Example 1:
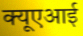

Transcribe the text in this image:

क्यूएआई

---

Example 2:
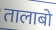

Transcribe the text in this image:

तालाबो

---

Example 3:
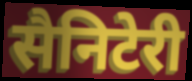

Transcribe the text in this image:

सैनिटेरी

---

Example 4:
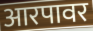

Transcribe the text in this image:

आरपावर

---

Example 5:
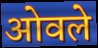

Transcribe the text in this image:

ओवले